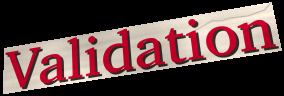
Validation